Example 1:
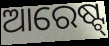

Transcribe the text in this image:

ଆରେଷ୍ଟ୍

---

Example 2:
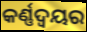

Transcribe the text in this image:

କର୍ଣ୍ଣଦ୍ୱୟର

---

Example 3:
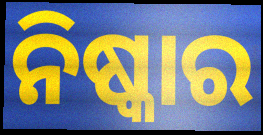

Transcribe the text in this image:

ନିଷ୍କାର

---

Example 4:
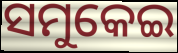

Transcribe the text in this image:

ସମୁକେଇ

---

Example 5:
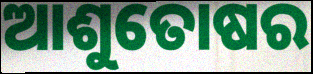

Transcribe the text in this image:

ଆଶୁତୋଷର